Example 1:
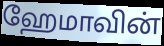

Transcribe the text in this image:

ஹேமாவின்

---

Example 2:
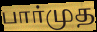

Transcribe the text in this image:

பார்முத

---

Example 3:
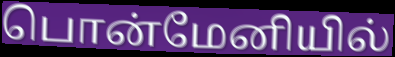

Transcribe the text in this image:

பொன்மேனியில்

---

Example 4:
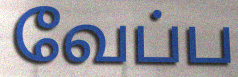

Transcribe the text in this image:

வேப்ப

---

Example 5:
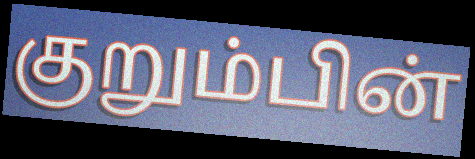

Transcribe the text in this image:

குறும்பின்